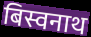
बिस्वनाथ